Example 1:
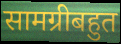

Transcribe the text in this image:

सामग्रीबहुत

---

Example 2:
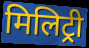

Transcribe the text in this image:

मिलिट्री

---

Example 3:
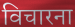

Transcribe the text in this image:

विचारना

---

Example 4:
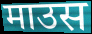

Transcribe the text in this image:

माउस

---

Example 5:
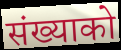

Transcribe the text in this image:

संख्याको